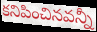
కనిపించినవన్నీ